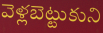
వెళ్లబెట్టుకుని